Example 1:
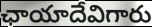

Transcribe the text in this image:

ఛాయాదేవిగారు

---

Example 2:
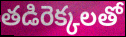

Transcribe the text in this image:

తడిరెక్కలతో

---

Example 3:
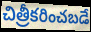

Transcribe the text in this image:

చిత్రీకరించబడే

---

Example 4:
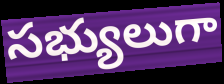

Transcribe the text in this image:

సభ్యులుగా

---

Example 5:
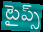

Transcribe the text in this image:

టైప్స్